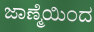
ಜಾಣ್ಮೆಯಿಂದ